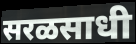
सरळसाधी